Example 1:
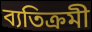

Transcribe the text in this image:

ব্যতিক্রমী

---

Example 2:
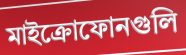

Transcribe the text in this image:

মাইক্রোফোনগুলি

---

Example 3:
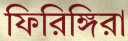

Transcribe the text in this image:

ফিরিঙ্গিরা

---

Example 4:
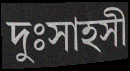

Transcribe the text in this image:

দুঃসাহসী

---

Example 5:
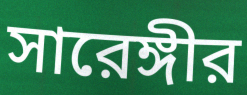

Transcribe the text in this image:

সারেঙ্গীর